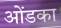
ओंडका